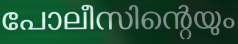
പോലീസിന്റെയും